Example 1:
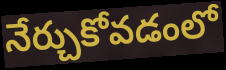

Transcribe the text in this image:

నేర్చుకోవడంలో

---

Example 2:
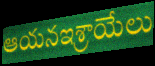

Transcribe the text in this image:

ఆయనఇశ్రాయేలు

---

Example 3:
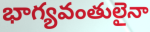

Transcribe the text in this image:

భాగ్యవంతులైనా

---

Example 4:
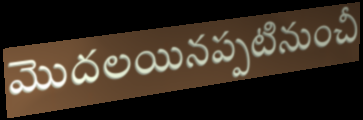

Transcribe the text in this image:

మొదలయినప్పటినుంచీ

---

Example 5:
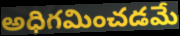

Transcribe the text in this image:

అధిగమించడమే